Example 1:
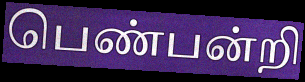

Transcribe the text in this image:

பெண்பன்றி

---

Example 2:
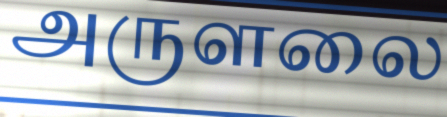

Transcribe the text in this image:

அருளலை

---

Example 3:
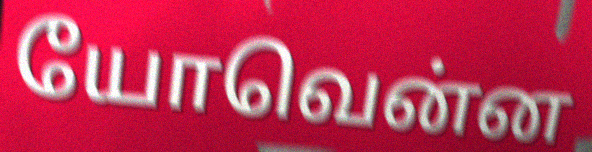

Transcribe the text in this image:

யோவென்ன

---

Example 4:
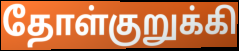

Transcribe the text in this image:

தோள்குறுக்கி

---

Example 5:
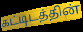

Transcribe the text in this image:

கட்டிடத்தின்